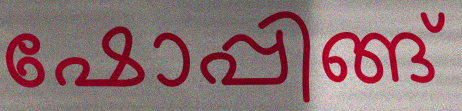
ഷോപ്പിങ്ങ്